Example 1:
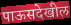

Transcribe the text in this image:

पाऊसदेखील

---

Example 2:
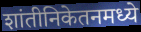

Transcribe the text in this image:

शांतीनिकेतनमध्ये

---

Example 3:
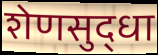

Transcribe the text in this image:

शेणसुद्धा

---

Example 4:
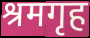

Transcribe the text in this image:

श्रमगृह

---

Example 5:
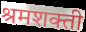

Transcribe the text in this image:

श्रमशक्ती